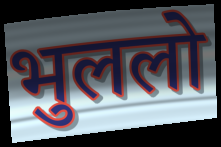
भुललो